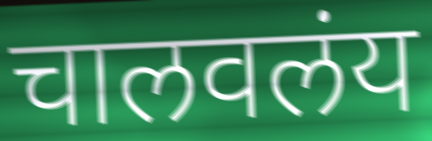
चालवलंय